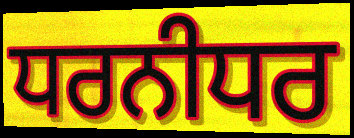
ਧਰਨੀਧਰ